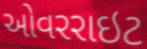
ઓવરરાઇટ